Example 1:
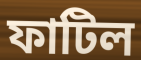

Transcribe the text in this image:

ফাটিল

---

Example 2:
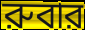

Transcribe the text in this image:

রুবার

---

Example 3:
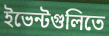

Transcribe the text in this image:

ইভেন্টগুলিতে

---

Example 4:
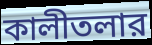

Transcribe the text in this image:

কালীতলার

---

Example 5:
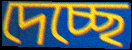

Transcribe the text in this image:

দেচ্ছে